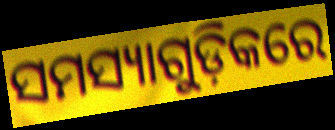
ସମସ୍ୟାଗୁଡ଼ିକରେ